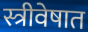
स्त्रीवेषात